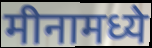
मीनामध्ये